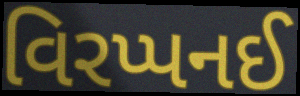
વિરપ્પનઈ